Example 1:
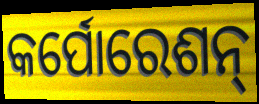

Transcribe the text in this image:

କର୍ପୋରେଶନ୍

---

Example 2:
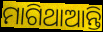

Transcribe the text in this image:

ମାଗିଥାଆନ୍ତି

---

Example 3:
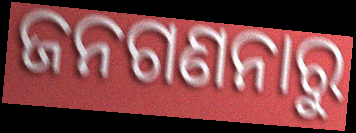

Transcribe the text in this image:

ଜନଗଣନାରୁ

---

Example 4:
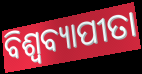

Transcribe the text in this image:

ବିଶ୍ୱବ୍ୟାପୀତା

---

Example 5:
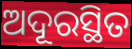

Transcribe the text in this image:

ଅଦୂରସ୍ଥିତ